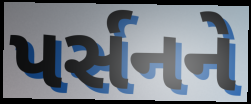
પર્સનને